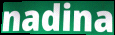
nadina